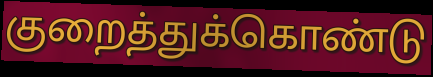
குறைத்துக்கொண்டு